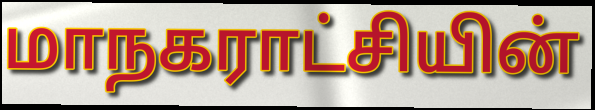
மாநகராட்சியின்